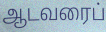
ஆடவரைப்